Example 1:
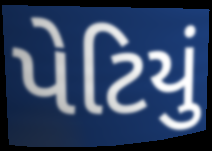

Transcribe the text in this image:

પેટિયું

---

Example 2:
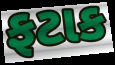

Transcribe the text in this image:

ફટાક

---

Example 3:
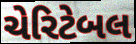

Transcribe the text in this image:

ચેરિટેબલ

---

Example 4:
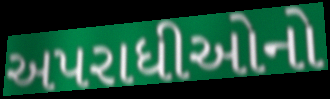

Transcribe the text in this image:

અપરાધીઓનો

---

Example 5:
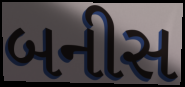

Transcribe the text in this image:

બનીસ